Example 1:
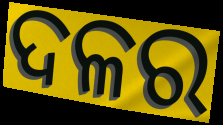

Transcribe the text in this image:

ଦଳର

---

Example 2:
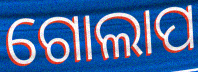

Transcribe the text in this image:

ଗୋଲାପ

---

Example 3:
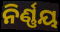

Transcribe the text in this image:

ନିର୍ଣ୍ଣୟ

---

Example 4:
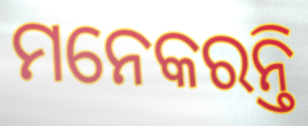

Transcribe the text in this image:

ମନେକରନ୍ତି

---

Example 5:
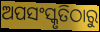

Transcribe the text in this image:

ଅପସଂସ୍କୃତିଠାରୁ